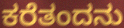
ಕರೆತಂದನು